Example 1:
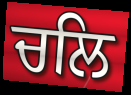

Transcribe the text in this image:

ਚਲਿ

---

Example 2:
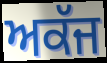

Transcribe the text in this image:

ਅਕੱਜ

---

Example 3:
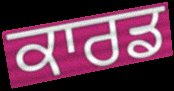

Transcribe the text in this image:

ਕਾਰਡ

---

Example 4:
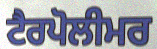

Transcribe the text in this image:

ਟੈਰਪੋਲੀਮਰ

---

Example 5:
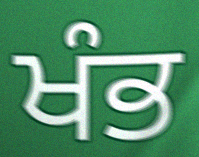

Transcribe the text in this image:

ਖੰਭ